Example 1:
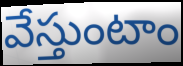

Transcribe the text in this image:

వేస్తుంటాం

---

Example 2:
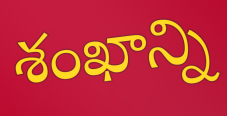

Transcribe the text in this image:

శంఖాన్ని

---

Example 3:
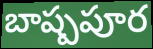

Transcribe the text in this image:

బాష్పపూర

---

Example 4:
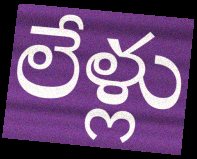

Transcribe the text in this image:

లేళ్లు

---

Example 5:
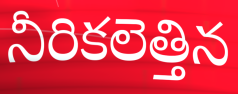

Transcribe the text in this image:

నీరికలెత్తిన